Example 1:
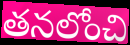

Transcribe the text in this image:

తనలోంచి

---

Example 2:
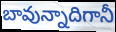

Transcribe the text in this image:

బావున్నాదిగానీ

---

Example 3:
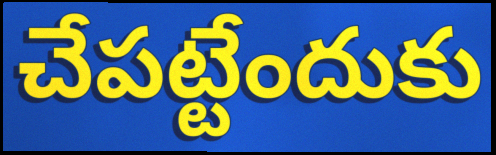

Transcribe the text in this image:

చేపట్టేందుకు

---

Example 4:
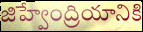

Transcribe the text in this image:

జిహ్వేంద్రియానికి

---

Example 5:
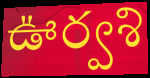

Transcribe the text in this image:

ఊర్వశి